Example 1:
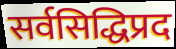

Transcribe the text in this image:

सर्वसिद्धिप्रद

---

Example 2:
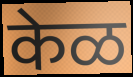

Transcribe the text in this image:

केळ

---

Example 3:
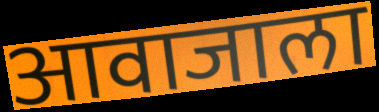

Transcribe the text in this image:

आवाजाला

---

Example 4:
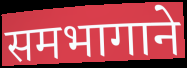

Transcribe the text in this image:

समभागाने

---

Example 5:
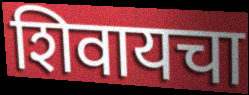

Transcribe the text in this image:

शिवायचा